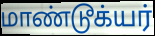
மாண்டூக்யர்